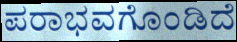
ಪರಾಭವಗೊಂಡಿದೆ